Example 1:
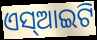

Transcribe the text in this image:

ଏସ୍ଆଇଟି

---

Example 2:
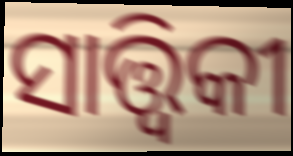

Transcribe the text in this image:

ସାତ୍ତ୍ୱିକୀ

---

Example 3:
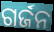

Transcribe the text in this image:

ଗର୍ଜନ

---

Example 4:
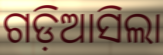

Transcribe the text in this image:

ଗଡ଼ିଆସିଲା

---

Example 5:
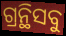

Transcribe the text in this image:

ଗ୍ରନ୍ଥିସବୁ